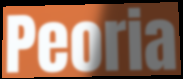
Peoria